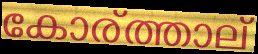
കോര്ത്താല്